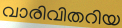
വാരിവിതറിയ